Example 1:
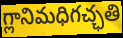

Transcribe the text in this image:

గ్లానిమధిగచ్ఛతి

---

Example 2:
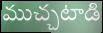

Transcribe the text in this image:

ముచ్చటాడి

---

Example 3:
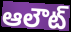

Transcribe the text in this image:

ఆలౌట్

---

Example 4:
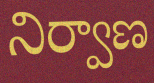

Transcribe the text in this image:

నిర్వాణ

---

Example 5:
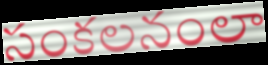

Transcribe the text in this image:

సంకలనంలా